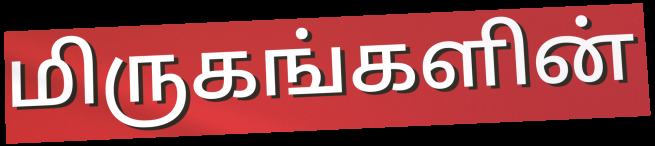
மிருகங்களின்